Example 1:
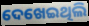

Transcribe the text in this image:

ଦେଖେଇଥିଲି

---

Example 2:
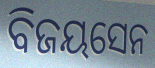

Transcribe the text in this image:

ବିଜୟସେନ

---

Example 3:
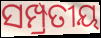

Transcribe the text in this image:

ସମ୍ପ୍ରତୀୟ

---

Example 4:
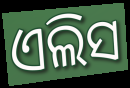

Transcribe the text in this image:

ଏଲିସ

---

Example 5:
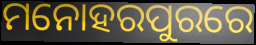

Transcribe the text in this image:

ମନୋହରପୁରରେ